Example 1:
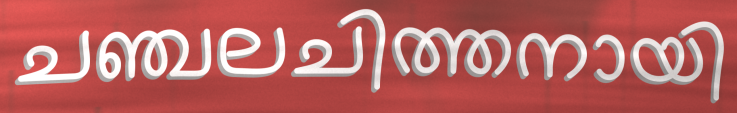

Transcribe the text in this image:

ചഞ്ചലചിത്തനായി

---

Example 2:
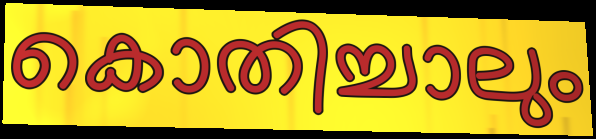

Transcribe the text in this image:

കൊതിച്ചാലും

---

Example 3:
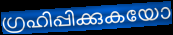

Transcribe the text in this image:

ഗ്രഹിപ്പിക്കുകയോ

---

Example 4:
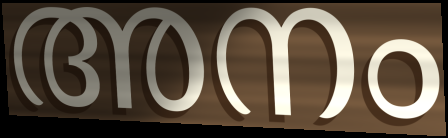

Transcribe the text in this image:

അനം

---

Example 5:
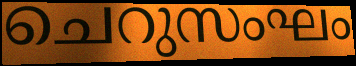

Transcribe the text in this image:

ചെറുസംഘം